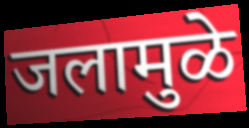
जलामुळे